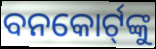
ବନକୋର୍ଟ୍‍ଙ୍କୁ